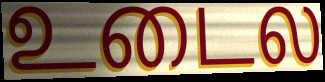
உடைல